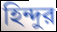
হিন্দুর